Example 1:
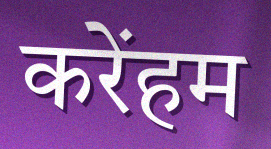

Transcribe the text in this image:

करेंहम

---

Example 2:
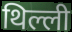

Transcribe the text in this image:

थिल्ली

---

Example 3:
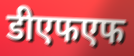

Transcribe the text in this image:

डीएफएफ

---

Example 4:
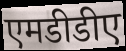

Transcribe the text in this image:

एमडीडीए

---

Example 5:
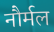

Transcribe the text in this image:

नौर्मल